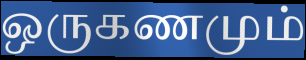
ஒருகணமும்